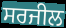
ਸਰਜੀਲ